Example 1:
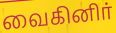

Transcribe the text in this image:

வைகினிர்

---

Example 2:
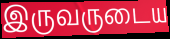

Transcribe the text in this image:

இருவருடைய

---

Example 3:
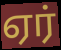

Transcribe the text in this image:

ஏர்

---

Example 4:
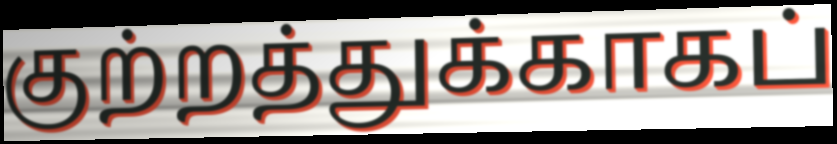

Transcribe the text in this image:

குற்றத்துக்காகப்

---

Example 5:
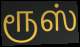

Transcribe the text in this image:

ரூஸ்